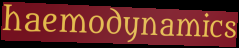
haemodynamics